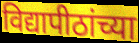
विद्यापीठांच्या